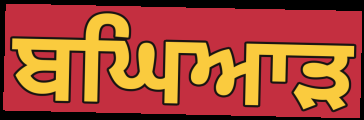
ਬਘਿਆੜ